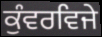
ਕੁੰਵਰਵਿਜੇ